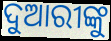
ଦୁଆରୀଙ୍କୁ